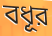
বধূর